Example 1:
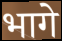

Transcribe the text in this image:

भागे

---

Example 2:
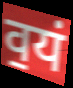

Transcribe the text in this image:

व॒यं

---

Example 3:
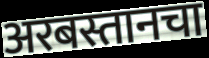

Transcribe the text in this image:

अरबस्तानचा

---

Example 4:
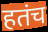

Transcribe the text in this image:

हतंच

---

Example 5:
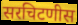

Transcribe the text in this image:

सरचिटणीस